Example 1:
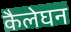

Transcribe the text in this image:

कैलेघन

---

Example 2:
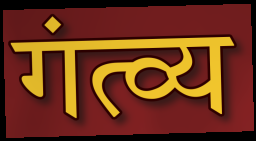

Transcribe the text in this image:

गंत्व्य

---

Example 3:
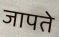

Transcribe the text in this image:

जापते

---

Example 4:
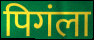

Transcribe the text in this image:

पिगंला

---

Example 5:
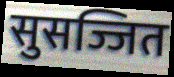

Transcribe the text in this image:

सुसज्जित